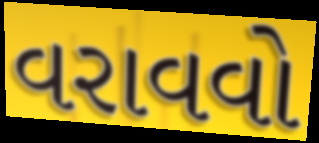
વરાવવો